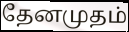
தேனமுதம்